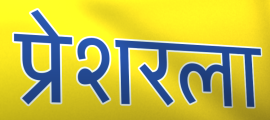
प्रेशरला